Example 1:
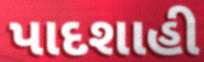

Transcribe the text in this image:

પાદશાહી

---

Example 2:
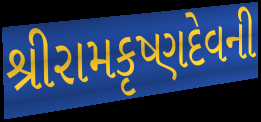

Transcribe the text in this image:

શ્રીરામકૃષ્ણદેવની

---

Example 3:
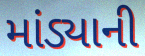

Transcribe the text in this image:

માંડ્યાની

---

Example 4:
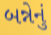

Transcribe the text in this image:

બન્નેનું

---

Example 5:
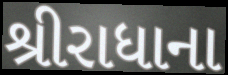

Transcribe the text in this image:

શ્રીરાધાના